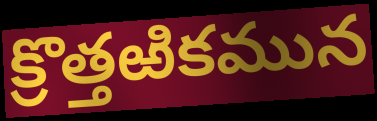
క్రొత్తఱికమున